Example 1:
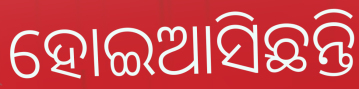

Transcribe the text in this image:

ହୋଇଆସିଛନ୍ତି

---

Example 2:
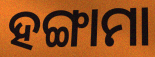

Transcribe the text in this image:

ହଙ୍ଗାମା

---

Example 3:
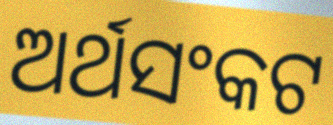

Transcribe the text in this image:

ଅର୍ଥସଂକଟ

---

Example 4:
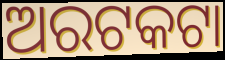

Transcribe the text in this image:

ଅରଟକଟା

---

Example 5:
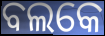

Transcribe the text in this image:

ବଲକେ